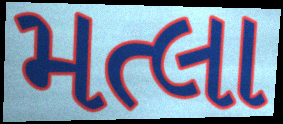
મત્લા